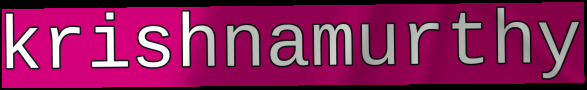
krishnamurthy